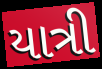
યાત્રી